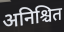
अनिश्चित